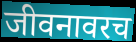
जीवनावरच